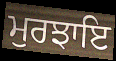
ਮੁਰਝਾਇ